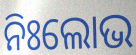
ନିଃଲୋଭ